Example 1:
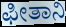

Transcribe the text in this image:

ಫೀತಾನಿ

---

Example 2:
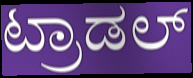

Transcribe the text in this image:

ಟ್ರಾಡಲ್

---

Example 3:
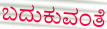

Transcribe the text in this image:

ಬದುಕುವಂತೆ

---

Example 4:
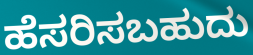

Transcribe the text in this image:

ಹೆಸರಿಸಬಹುದು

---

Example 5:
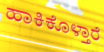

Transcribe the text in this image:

ಹಾಕಿಕೊಳ್ತಾರೆ